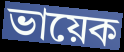
ভায়েক